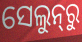
ସେଲୁନ୍‌ରୁ